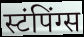
स्टंपिंग्स